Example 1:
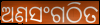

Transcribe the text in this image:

ଅଣସଂଗଠିତ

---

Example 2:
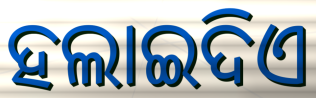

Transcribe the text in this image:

ହଲାଇଦିଏ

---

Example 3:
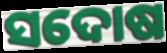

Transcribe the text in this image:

ସଦୋଷ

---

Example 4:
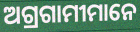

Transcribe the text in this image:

ଅଗ୍ରଗାମୀମାନେ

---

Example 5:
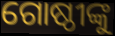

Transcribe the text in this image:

ଗୋଷ୍ଠୀଙ୍କୁ